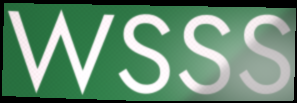
WSSS